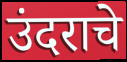
उंदराचे